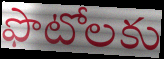
ఫొటోలకు